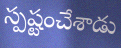
స్పష్టంచేశాడు